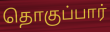
தொகுப்பார்